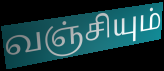
வஞ்சியும்